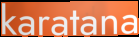
karatana